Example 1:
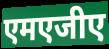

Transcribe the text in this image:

एमएजीए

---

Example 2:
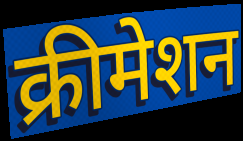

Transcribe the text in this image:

क्रीमेशन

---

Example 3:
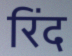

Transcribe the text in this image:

रिंद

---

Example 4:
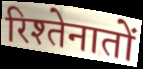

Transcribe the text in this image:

रिश्तेनातों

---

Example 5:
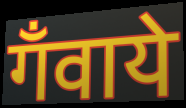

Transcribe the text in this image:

गँवाये